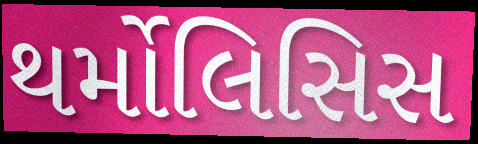
થર્મોલિસિસ